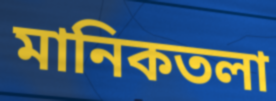
মানিকতলা